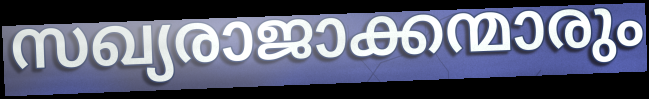
സഖ്യരാജാക്കന്മാരും